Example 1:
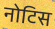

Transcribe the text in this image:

नोटिस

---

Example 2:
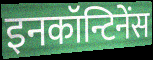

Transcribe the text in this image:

इनकॉन्टिनेंस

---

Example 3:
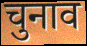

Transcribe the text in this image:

चुनाव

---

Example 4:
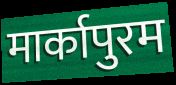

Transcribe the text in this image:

मार्कापुरम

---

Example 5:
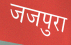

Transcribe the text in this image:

जजपुरा